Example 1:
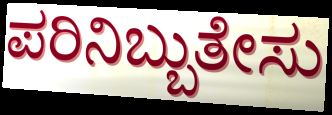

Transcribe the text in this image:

ಪರಿನಿಬ್ಬುತೇಸು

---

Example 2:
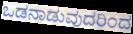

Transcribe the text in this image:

ಒಡನಾಡುವುದರಿಂದ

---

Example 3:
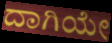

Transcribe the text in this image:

ದಾಗಿಯೇ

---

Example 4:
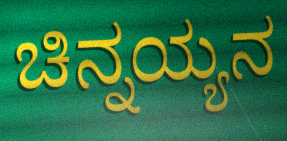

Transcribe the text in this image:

ಚಿನ್ನಯ್ಯನ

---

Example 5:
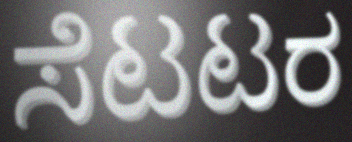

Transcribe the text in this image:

ಸೆಟಟರ